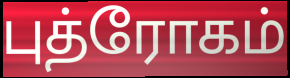
புத்ரோகம்